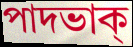
পাদভাক্